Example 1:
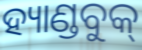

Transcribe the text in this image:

ହ୍ୟାଣ୍ଡବୁକ୍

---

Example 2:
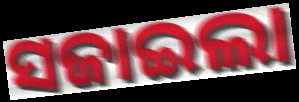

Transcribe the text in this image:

ସଜାଇଲା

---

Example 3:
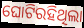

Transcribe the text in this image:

ଘୋଟିରହିଥିଲା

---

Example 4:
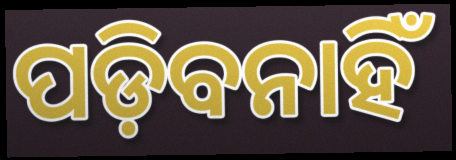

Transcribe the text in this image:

ପଡ଼ିବନାହିଁ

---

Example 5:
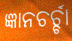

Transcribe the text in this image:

ଜ୍ଞାନଚର୍ଚ୍ଚା